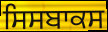
ਸਿਸਬਾਕਸ